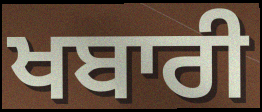
ਖਬਾਰੀ